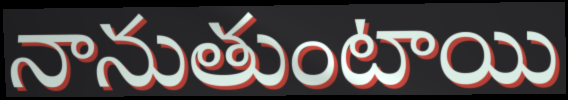
నానుతుంటాయి